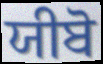
ਯੀਬੋ